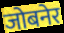
जोबनेर